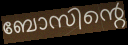
ബോസിന്റെ